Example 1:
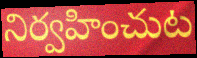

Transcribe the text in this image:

నిర్వహించుట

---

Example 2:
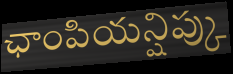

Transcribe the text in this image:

ఛాంపియన్షిప్కు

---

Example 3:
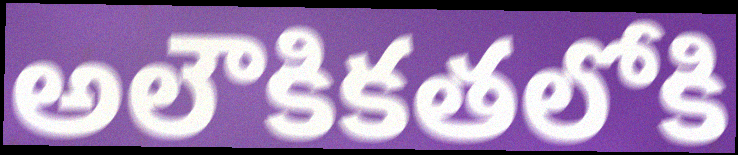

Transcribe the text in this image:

అలౌకికతలోకి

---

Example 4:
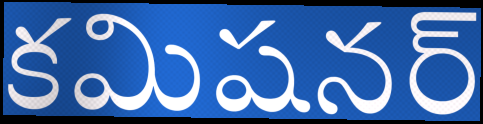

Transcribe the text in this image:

కమిషనర్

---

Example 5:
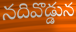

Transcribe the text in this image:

నదివొడ్డున